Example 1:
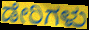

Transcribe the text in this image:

ಡೇರಿಗಳು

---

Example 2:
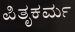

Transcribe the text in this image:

ಪಿತೃಕರ್ಮ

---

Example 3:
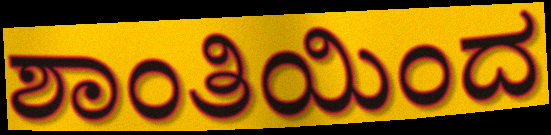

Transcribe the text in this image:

ಶಾಂತಿಯಿಂದ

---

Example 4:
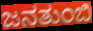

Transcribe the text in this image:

ಜನತುಂಬಿ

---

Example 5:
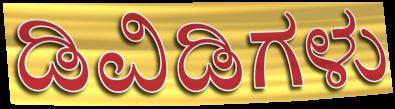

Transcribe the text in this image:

ಡಿವಿಡಿಗಳು